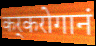
कर्करोगानं